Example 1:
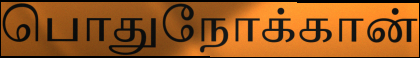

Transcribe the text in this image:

பொதுநோக்கான்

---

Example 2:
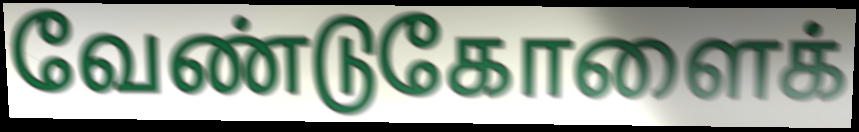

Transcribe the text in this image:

வேண்டுகோளைக்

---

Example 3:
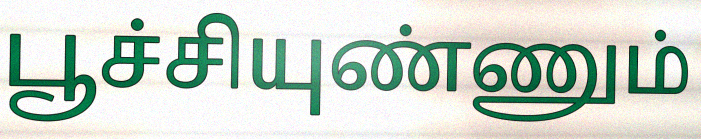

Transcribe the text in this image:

பூச்சியுண்ணும்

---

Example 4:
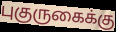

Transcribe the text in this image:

புகுருகைக்கு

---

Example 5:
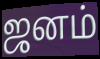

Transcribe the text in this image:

ஜனம்